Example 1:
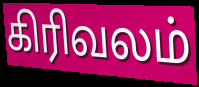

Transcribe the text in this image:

கிரிவலம்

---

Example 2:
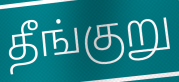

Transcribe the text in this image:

தீங்குறு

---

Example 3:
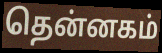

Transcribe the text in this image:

தென்னகம்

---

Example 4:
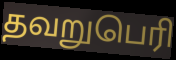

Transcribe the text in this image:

தவறுபெரி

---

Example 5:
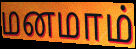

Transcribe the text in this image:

மனமாம்